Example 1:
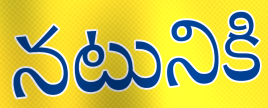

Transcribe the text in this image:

నటునికి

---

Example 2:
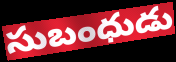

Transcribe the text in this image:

సుబంధుడు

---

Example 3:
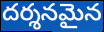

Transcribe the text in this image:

దర్శనమైన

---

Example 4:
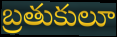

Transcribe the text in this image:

బ్రతుకులూ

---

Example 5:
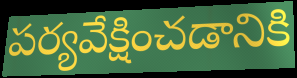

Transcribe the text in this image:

పర్యవేక్షించడానికి